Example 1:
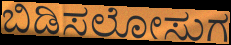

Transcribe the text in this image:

ಬಿಡಿಸಲೋಸುಗ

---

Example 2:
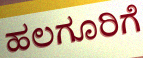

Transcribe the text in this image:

ಹಲಗೂರಿಗೆ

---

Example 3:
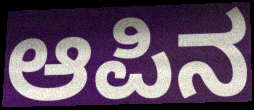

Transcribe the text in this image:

ಆಪಿನ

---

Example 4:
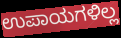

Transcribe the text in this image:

ಉಪಾಯಗಳಿಲ್ಲ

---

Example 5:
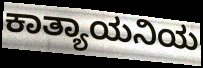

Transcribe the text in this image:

ಕಾತ್ಯಾಯನಿಯ